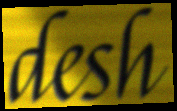
desh